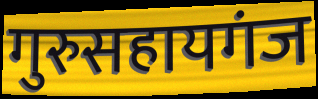
गुरुसहायगंज